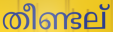
തീണ്ടല്